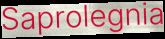
Saprolegnia